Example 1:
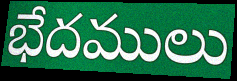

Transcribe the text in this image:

భేదములు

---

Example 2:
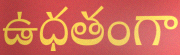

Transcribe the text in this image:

ఉధతంగా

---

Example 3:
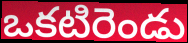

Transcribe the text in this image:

ఒకటిరెండు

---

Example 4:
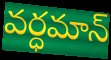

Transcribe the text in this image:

వర్ధమాన్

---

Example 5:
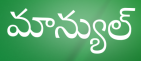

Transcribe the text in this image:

మాన్యుల్